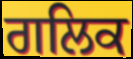
ਗਲਿਕ